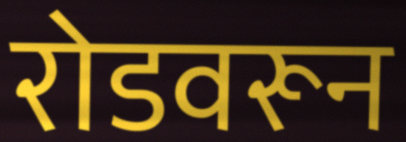
रोडवरून